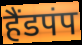
हैंडपंप